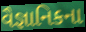
વૈજ્ઞાનિકના